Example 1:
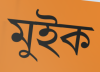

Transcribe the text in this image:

মুইক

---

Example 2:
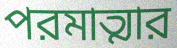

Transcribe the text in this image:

পরমাত্মার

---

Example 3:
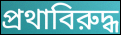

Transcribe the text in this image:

প্রথাবিরুদ্ধ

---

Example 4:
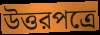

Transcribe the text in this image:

উত্তরপত্রে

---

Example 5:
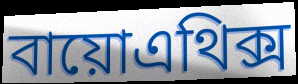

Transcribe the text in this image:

বায়োএথিক্স